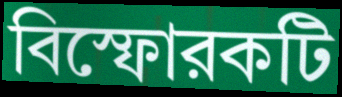
বিস্ফোরকটি